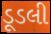
ડૂડલી